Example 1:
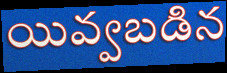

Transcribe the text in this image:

యివ్వబడిన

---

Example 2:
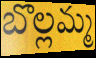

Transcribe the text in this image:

బొల్లమ్మ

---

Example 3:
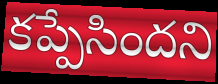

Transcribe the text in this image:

కప్పేసిందని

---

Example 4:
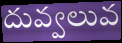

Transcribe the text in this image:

దువ్వలువ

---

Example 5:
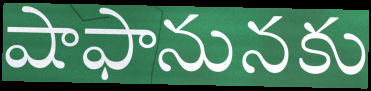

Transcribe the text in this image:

షాఫానునకు